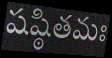
షష్ఠితమః